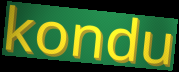
kondu